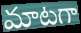
మాటగా